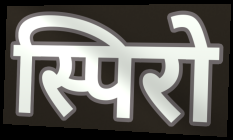
स्पिरो